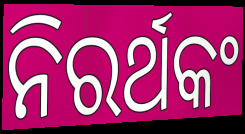
ନିରର୍ଥକଂ